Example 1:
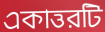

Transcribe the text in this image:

একাত্তরটি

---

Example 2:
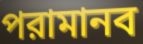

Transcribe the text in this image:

পরামানব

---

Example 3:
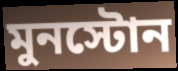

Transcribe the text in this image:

মুনস্টোন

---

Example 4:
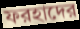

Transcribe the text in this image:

ফরহাদের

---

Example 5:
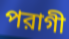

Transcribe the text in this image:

পরাগী